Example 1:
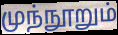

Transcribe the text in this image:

முந்நூறும்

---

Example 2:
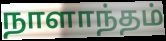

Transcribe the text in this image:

நாளாந்தம்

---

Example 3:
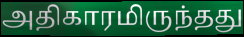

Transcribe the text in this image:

அதிகாரமிருந்தது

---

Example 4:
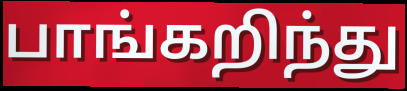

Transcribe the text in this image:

பாங்கறிந்து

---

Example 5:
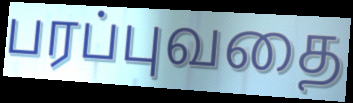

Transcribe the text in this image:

பரப்புவதை